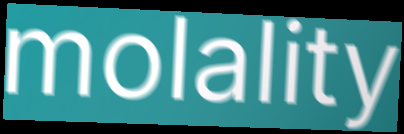
molality